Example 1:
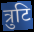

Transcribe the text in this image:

त्रुटि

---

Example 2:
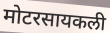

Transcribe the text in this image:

मोटरसायकली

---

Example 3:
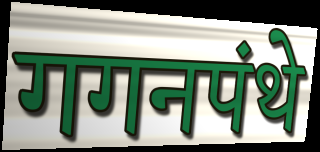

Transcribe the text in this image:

गगनपंथे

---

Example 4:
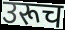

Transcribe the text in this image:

उरूच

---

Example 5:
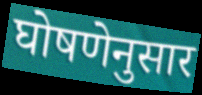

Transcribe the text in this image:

घोषणेनुसार